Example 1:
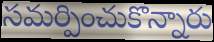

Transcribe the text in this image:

సమర్పించుకొన్నారు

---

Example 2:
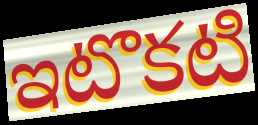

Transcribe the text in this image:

ఇటొకటి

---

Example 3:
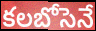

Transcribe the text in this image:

కలబోసెనే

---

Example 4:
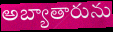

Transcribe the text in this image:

అబ్యాతారును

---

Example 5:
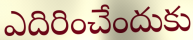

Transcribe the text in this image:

ఎదిరించేందుకు